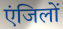
एंजिलों